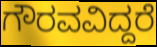
ಗೌರವವಿದ್ದರೆ